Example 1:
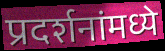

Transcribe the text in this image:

प्रदर्शनांमध्ये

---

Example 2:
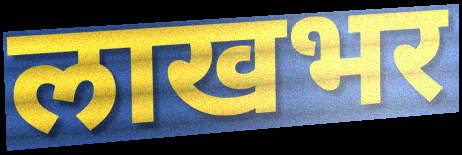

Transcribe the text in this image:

लाखभर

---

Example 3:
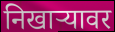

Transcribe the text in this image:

निखार्‍यावर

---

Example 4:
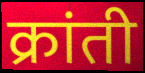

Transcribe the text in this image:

क्रांती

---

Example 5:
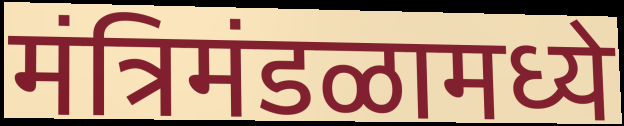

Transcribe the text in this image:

मंत्रिमंडळामध्ये